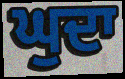
ਘੁਦਾ